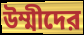
উম্মীদের